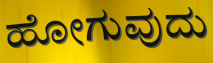
ಹೋಗುವುದು